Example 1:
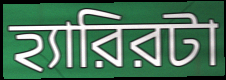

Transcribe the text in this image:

হ্যারিরটা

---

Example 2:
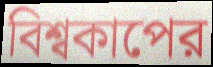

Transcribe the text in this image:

বিশ্বকাপের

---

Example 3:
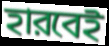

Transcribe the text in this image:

হারবেই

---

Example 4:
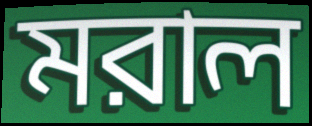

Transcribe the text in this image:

মরাল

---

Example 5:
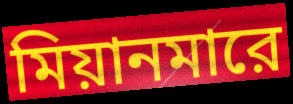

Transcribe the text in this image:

মিয়ানমারে